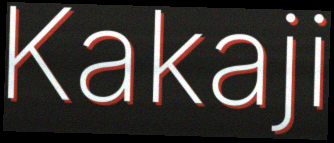
Kakaji